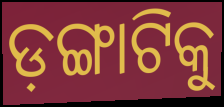
ଡ଼ଙ୍ଗାଟିକୁ